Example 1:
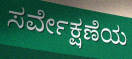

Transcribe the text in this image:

ಸರ್ವೇಕ್ಷಣೆಯ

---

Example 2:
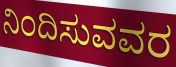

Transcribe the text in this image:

ನಿಂದಿಸುವವರ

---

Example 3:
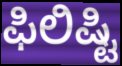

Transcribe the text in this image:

ಫಿಲಿಷ್ಟಿ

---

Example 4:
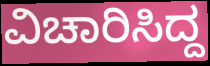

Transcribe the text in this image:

ವಿಚಾರಿಸಿದ್ದ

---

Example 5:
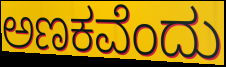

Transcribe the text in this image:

ಅಣಕವೆಂದು